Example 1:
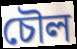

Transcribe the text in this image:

চৌল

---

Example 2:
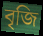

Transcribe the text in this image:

বৃজি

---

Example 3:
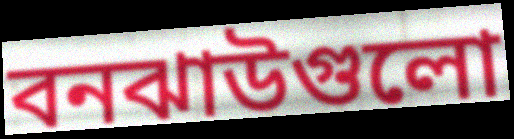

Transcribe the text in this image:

বনঝাউগুলো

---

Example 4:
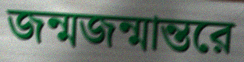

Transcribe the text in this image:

জন্মজন্মান্তরে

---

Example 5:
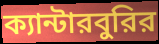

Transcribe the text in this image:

ক্যান্টারবুরির